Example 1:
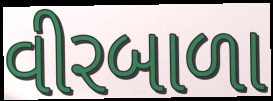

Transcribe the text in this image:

વીરબાળા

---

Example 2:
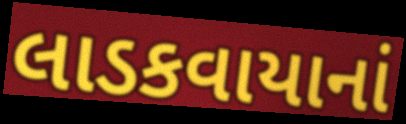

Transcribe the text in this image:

લાડકવાયાનાં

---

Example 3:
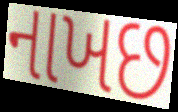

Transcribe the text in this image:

નાખછ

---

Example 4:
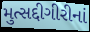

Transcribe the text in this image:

મુત્સદ્દીગીરીનાં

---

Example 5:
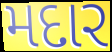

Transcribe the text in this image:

મદાર